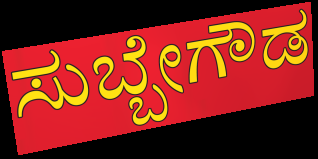
ಸುಬ್ಬೇಗೌಡ